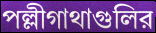
পল্লীগাথাগুলির